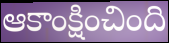
ఆకాంక్షించింది